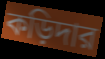
কড়িদার